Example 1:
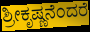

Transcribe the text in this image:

ಶ್ರೀಕೃಷ್ಣನೆಂದರೆ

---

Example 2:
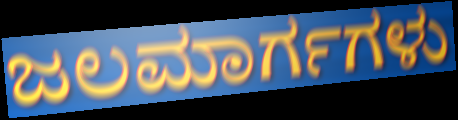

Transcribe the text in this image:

ಜಲಮಾರ್ಗಗಳು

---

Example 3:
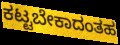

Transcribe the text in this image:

ಕಟ್ಟಬೇಕಾದಂತಹ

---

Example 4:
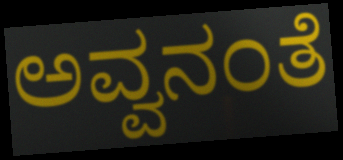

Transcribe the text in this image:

ಅವ್ವನಂತೆ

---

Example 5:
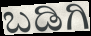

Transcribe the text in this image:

ಬಡಿಗಿ